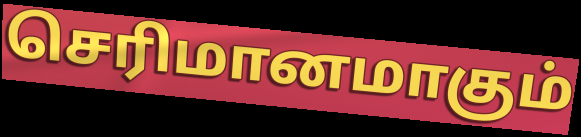
செரிமானமாகும்